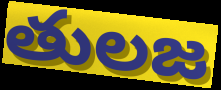
తులజ